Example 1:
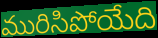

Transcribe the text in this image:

మురిసిపోయేది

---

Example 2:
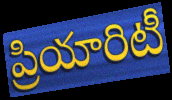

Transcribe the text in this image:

ప్రియారిటీ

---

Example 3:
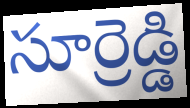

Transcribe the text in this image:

సూర్రెడ్డి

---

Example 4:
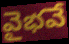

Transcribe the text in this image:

వైభవే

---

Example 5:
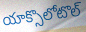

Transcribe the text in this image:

యాక్సొలోటొల్